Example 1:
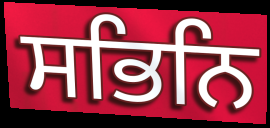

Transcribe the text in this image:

ਸਭਿਨਿ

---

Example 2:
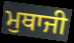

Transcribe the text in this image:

ਮੁਥਾਜੀ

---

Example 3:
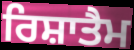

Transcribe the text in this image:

ਰਿਸ਼ਾਤੈਮ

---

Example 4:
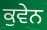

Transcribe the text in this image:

ਕੁਵੇਨ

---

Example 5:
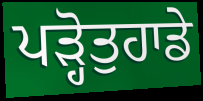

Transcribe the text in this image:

ਪੜ੍ਹੋਤੁਹਾਡੇ